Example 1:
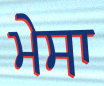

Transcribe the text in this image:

ਮੇਸਾ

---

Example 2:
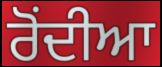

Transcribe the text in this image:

ਰੋਂਦੀਆ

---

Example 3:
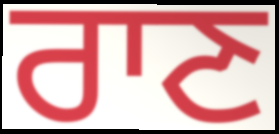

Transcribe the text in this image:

ਰਾਣ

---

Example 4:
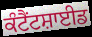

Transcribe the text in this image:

ਕੰਟੈਂਟਸ਼ਾਈਡ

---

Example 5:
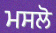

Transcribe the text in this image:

ਮਸਲੋ